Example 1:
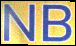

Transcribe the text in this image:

NB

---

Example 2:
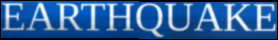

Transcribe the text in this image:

EARTHQUAKE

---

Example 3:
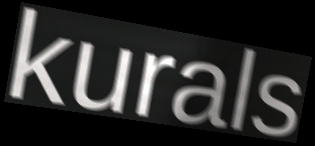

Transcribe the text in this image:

kurals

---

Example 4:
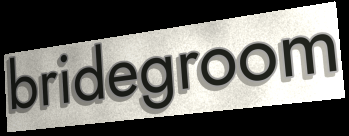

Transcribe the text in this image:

bridegroom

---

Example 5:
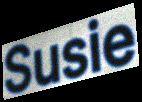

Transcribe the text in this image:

Susie